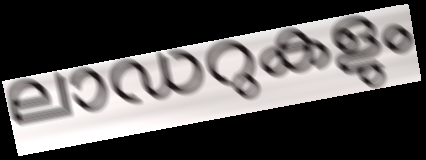
ലാഡറുകളും